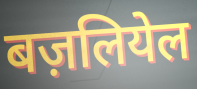
बज़लियेल